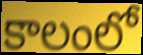
కాలంలో